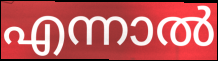
എന്നാൽ